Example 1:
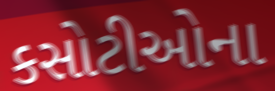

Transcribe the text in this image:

કસોટીઓના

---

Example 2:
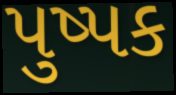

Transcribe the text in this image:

પુષ્પક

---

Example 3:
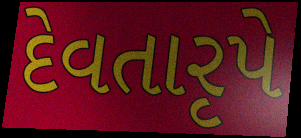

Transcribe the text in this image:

દેવતારૃપે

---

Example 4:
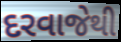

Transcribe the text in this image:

દરવાજેથી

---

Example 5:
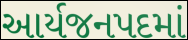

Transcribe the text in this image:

આર્યજનપદમાં